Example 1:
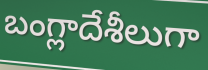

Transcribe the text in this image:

బంగ్లాదేశీలుగా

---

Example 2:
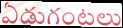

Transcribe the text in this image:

ఏడుగంటలు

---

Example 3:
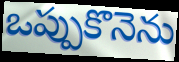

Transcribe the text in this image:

ఒప్పుకొనెను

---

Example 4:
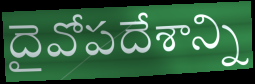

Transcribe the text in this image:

దైవోపదేశాన్ని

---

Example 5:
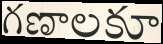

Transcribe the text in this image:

గణాలకూ